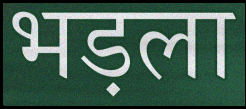
भड़ला